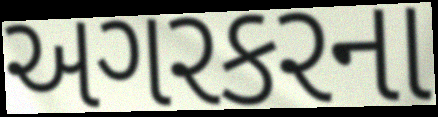
અગરકરના